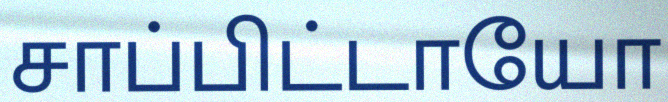
சாப்பிட்டாயோ